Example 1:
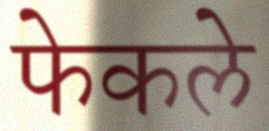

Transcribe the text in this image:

फेकले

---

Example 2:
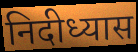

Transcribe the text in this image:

निदीध्यास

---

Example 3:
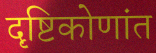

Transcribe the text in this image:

दृष्टिकोणांत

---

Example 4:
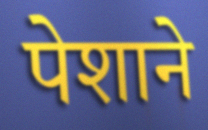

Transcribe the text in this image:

पेशाने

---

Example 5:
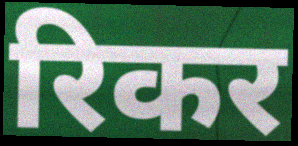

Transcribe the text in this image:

रिकर